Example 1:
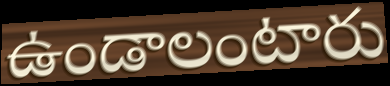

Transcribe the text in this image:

ఉండాలంటారు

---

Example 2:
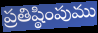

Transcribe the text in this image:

ప్రతిష్ఠింపుము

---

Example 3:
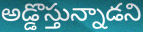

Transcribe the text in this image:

అడ్డొస్తున్నాడని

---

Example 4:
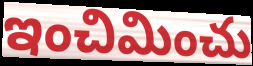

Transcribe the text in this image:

ఇంచిమించు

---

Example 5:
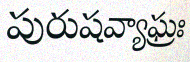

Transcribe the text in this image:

పురుషవ్యాఘ్రః